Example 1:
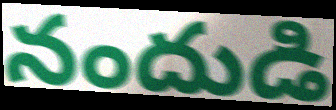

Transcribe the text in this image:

నందుడి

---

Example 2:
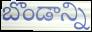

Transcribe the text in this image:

బొండాన్ని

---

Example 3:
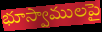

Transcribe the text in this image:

భూస్వాములపై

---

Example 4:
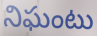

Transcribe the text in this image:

నిఘంటు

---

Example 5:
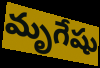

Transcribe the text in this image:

మృగేషు